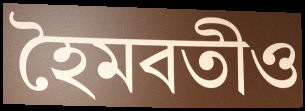
হৈমবতীও